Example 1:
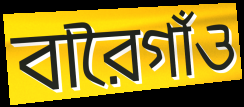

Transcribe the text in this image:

বারৈগাঁও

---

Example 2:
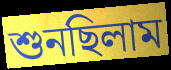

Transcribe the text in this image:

শুনছিলাম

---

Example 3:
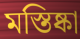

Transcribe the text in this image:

মস্তিষ্কা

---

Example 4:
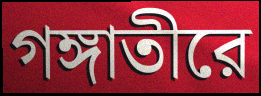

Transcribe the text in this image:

গঙ্গাতীরে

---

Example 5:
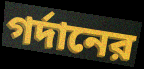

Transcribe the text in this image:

গর্দানের